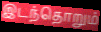
இடந்தொறும்